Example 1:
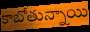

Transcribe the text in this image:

కాబోతున్నాయి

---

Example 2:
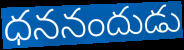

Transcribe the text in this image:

ధననందుడు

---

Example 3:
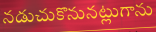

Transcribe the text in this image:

నడుచుకొనునట్లుగాను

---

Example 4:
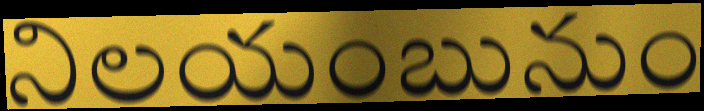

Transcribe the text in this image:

నిలయంబునుం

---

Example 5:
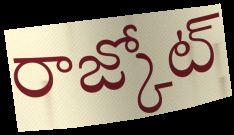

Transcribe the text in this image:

రాజ్కోట్